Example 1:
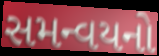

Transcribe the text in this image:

સમન્વયનો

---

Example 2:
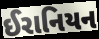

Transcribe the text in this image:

ઈરાનિયન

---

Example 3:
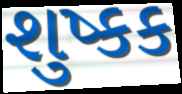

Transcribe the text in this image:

શુષ્કક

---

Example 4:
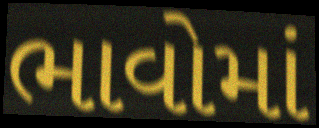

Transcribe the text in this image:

ભાવોમાં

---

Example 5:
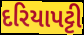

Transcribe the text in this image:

દરિયાપટ્ટી